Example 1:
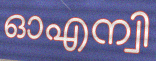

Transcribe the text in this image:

ഓഎന്വി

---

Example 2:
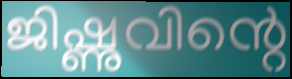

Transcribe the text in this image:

ജിഷ്ണുവിന്റെ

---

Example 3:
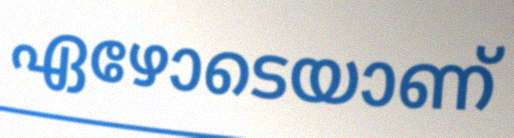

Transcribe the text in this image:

ഏഴോടെയാണ്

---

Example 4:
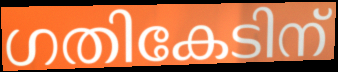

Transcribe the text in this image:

ഗതികേടിന്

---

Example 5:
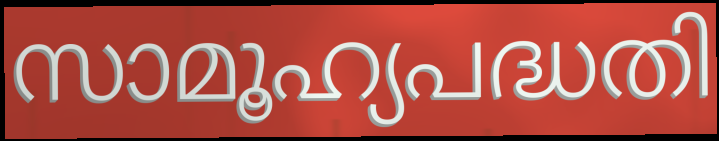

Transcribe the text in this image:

സാമൂഹ്യപദ്ധതി